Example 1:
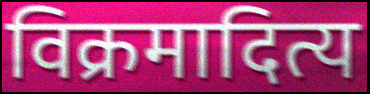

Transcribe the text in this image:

विक्रमादित्य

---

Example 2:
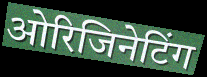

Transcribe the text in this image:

ओरिजिनेटिंग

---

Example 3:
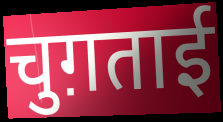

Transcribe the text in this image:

चुग़ताई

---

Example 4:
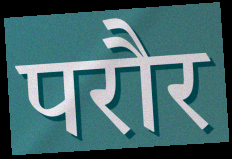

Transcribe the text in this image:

परौर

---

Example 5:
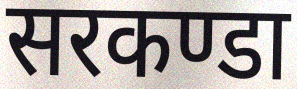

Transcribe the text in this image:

सरकण्डा